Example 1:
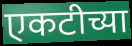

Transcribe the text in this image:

एकटीच्या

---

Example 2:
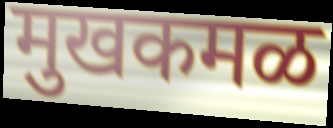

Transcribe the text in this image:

मुखकमळ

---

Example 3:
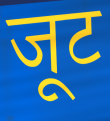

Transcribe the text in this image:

जूट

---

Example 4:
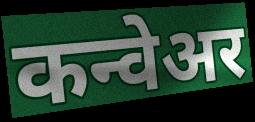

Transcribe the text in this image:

कन्वेअर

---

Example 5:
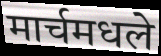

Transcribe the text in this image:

मार्चमधले